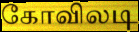
கோவிலடி